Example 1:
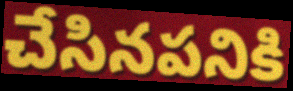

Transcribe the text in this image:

చేసినపనికి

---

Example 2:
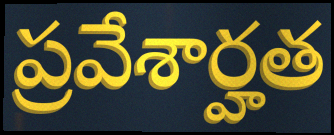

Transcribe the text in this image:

ప్రవేశార్హత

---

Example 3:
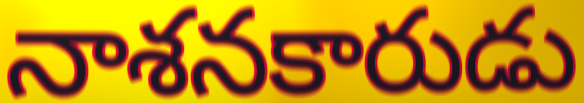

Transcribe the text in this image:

నాశనకారుడు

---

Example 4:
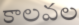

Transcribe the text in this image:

కాలవల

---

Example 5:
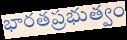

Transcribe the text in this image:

భారతప్రభుత్వం